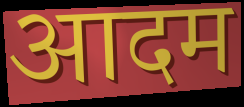
आदम